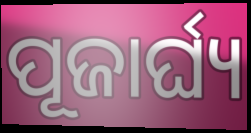
ପୂଜାର୍ଘ୍ୟ